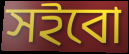
সইবো